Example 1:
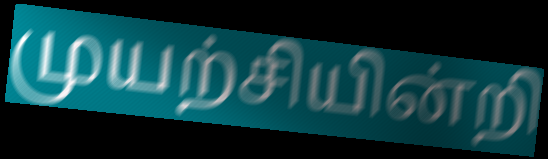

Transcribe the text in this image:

முயற்சியின்றி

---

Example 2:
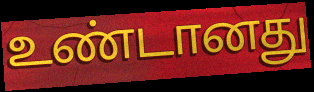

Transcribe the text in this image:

உண்டானது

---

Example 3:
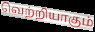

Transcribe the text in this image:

வெற்றியாகும்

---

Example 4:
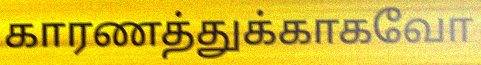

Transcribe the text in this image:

காரணத்துக்காகவோ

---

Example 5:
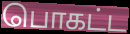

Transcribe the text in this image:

பொகட்ட